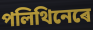
পলিথিনেৰে